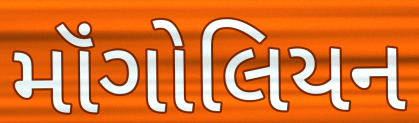
મૉંગોલિયન